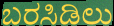
ಬರಸಿಡಿಲು